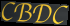
CBDC